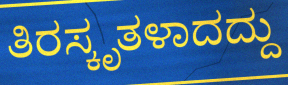
ತಿರಸ್ಕೃತಳಾದದ್ದು